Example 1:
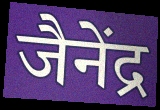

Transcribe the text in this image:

जैनेंद्र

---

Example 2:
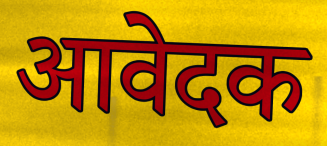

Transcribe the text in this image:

आवेदक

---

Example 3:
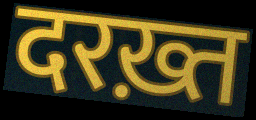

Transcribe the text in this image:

दरख़्त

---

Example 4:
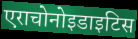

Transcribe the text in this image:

एराचोनोइडाइटिस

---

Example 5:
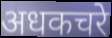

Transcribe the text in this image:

अधकचरे